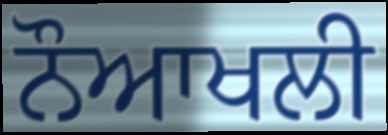
ਨੌਆਖਲੀ